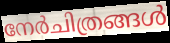
നേർചിത്രങ്ങൾ